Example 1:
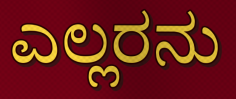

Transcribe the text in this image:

ಎಲ್ಲರನು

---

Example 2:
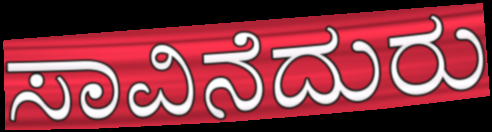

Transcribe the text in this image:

ಸಾವಿನೆದುರು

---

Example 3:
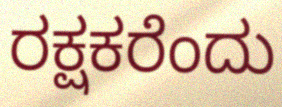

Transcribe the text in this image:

ರಕ್ಷಕರೆಂದು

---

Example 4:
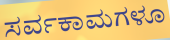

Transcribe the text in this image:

ಸರ್ವಕಾಮಗಳೂ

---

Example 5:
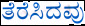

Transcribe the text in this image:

ತೆರೆಸಿದವು